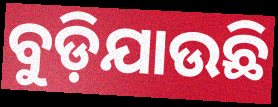
ବୁଡ଼ିଯାଉଛି